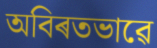
অবিৰতভাৱে